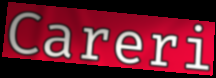
Careri